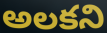
అలకని